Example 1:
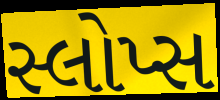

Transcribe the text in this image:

સ્લોપ્સ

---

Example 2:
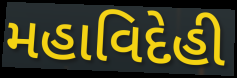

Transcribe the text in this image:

મહાવિદેહી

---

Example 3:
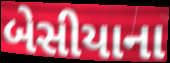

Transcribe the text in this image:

બેસીયાના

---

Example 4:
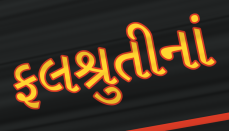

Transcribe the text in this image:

ફલશ્રુતીનાં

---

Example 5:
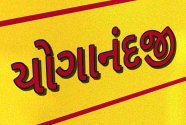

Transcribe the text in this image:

યોગાનંદજી